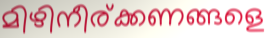
മിഴിനീര്ക്കണങ്ങളെ